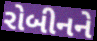
રોબીનને